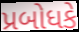
પ્રબોધકે